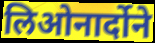
लिओनार्दोने